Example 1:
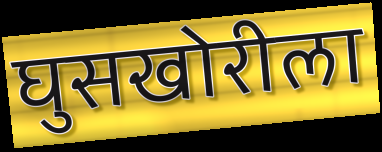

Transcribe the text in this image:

घुसखोरीला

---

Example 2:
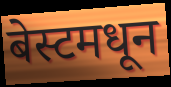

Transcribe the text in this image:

बेस्टमधून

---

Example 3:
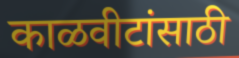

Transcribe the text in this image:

काळवीटांसाठी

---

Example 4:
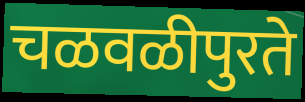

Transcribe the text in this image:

चळवळीपुरते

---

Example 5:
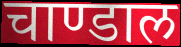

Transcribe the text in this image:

चाण्डाल